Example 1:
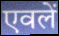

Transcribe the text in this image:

एवलें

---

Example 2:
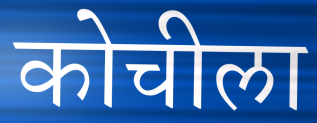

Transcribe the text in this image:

कोचीला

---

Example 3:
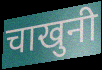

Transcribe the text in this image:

चाखुनी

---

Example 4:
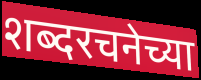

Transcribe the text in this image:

शब्दरचनेच्या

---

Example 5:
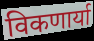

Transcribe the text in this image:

विकणार्या